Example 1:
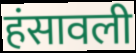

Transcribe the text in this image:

हंसावली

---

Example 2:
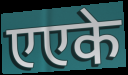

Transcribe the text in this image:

एएके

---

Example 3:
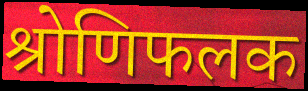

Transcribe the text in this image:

श्रोणिफलक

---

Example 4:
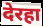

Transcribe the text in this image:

देरहा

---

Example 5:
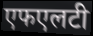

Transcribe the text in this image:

एफएलटी